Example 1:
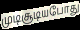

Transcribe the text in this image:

முடிசூடியபோது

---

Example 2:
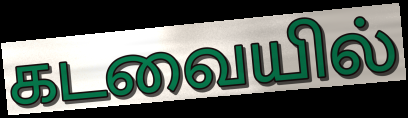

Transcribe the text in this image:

கடவையில்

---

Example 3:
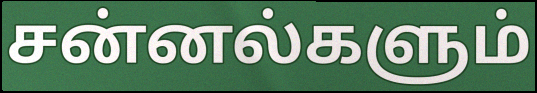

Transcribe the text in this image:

சன்னல்களும்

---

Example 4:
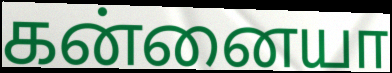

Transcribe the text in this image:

கன்னையா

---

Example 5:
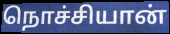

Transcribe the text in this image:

நொச்சியான்